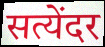
सत्येंदर